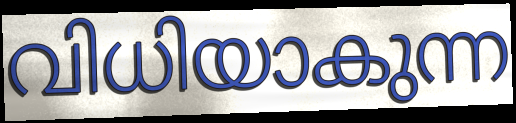
വിധിയാകുന്ന